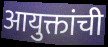
आयुक्तांची